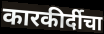
कारकीर्दीचा